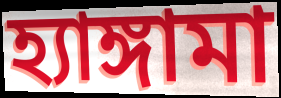
হ্যাঙ্গামা